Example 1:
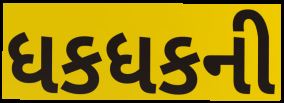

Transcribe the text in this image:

ધકધકની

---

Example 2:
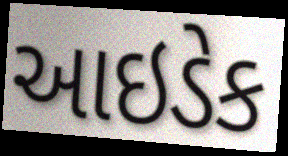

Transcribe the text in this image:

આઇડેક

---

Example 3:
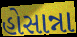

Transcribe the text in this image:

હોસાન્ના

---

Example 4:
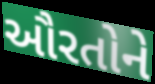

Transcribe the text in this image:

ઔરતોને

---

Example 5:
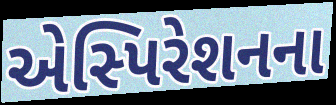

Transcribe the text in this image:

એસ્પિરેશનના